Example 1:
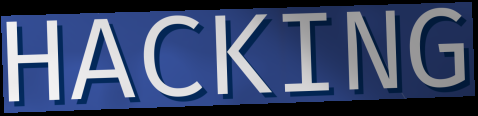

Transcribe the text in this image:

HACKING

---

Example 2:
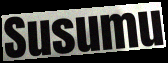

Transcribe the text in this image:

Susumu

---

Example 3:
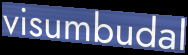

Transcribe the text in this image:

visumbudal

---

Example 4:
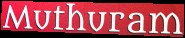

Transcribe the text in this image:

Muthuram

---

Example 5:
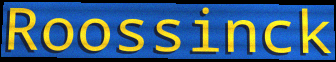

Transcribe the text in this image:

Roossinck